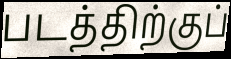
படத்திற்குப்